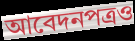
আবেদনপত্রও